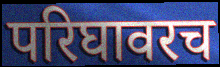
परिघावरच